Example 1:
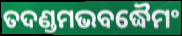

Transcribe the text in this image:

ତଦଣ୍ଡମଭବଦ୍ଧୈମଂ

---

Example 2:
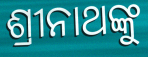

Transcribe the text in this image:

ଶ୍ରୀନାଥଙ୍କୁ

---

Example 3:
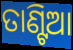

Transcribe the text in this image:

ତାଣ୍ଟିଆ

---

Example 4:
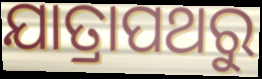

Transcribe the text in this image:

ଯାତ୍ରାପଥରୁ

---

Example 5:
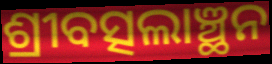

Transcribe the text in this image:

ଶ୍ରୀବତ୍ସଲାଞ୍ଛନ